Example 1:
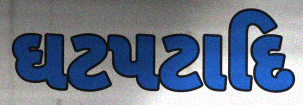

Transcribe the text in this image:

ઘટપટાદિ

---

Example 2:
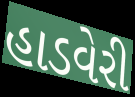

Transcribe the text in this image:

હાડવેરી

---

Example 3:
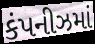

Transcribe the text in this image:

કંપનીઝમાં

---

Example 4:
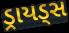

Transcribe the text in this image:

ડ્રાયડ્સ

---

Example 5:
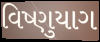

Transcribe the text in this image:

વિષ્ણુયાગ